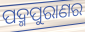
ପଦ୍ମପୁରାଣର